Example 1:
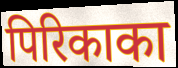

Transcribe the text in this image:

पिरिकाका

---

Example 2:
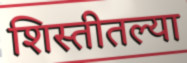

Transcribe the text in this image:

शिस्तीतल्या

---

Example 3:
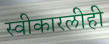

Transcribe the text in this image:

स्वीकारलीही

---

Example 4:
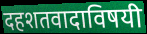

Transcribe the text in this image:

दहशतवादाविषयी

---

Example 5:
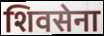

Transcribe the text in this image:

शिवसेना